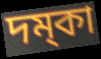
দম্‌কা